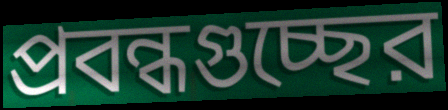
প্রবন্ধগুচ্ছের